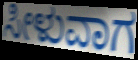
ಸೀಳುವಾಗ